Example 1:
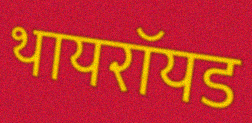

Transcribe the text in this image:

थायरॉयड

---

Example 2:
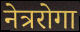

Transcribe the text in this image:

नेत्ररोगा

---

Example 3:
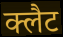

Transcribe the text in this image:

क्लैट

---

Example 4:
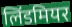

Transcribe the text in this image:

लिंडमियर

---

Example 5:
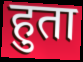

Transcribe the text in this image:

हुता